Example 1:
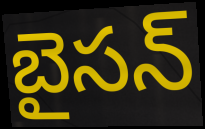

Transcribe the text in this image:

బైసన్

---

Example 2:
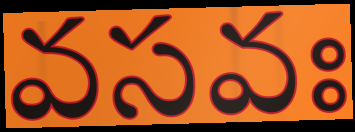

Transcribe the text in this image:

వసవః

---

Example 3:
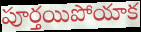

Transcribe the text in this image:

పూర్తయిపోయాక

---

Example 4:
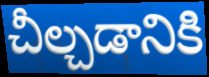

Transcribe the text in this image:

చీల్చడానికి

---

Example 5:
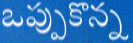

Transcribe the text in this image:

ఒప్పుకొన్న